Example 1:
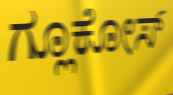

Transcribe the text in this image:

ಗ್ಲೂಕೋಸ್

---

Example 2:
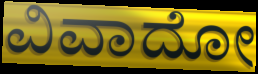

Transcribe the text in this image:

ವಿವಾದೋ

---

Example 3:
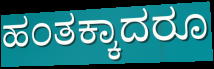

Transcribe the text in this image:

ಹಂತಕ್ಕಾದರೂ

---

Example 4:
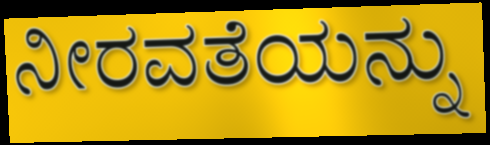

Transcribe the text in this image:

ನೀರವತೆಯನ್ನು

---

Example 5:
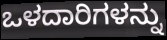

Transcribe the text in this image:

ಒಳದಾರಿಗಳನ್ನು